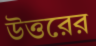
উত্তরের